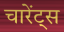
चारेंट्स